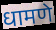
धामणे